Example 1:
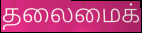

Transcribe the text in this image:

தலைமைக்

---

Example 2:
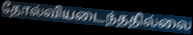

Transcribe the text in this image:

தோல்வியடைந்ததில்லை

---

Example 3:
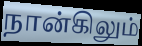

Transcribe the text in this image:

நான்கிலும்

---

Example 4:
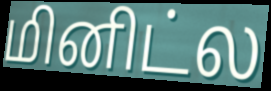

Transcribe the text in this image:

மினிட்ல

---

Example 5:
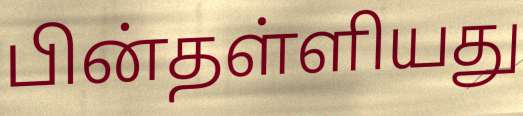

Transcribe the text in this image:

பின்தள்ளியது